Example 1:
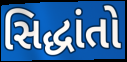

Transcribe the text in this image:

સિદ્ધાંતો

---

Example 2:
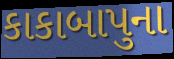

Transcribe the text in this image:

કાકાબાપુના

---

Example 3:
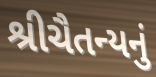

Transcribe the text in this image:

શ્રીચૈતન્યનું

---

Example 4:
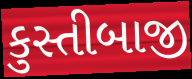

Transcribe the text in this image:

કુસ્તીબાજી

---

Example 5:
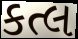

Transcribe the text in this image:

કત્લ